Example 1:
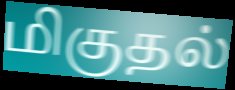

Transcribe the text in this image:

மிகுதல்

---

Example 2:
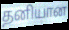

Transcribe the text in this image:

தனியான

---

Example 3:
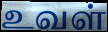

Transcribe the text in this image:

உவள்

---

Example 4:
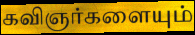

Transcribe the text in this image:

கவிஞர்களையும்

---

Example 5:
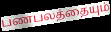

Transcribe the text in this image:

பணபலத்தையும்